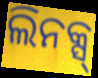
ଲିନକ୍ସ୍